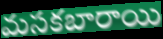
మసకబారాయి